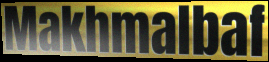
Makhmalbaf